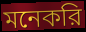
মনেকরি